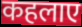
कहलाए